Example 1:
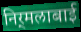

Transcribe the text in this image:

निर्मलाबाई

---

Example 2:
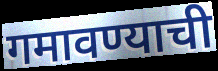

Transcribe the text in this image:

गमावण्याची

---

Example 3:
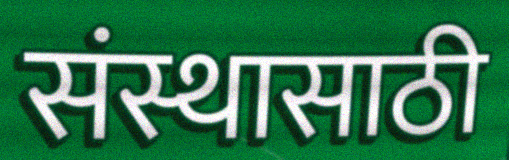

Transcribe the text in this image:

संस्थासाठी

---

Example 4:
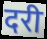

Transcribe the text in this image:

दरी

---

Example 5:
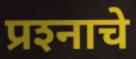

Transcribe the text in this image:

प्रश्‍नाचे